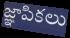
జ్ఞాపికలు